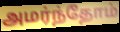
அமர்ந்தோம்